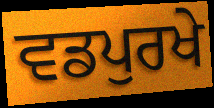
ਵਡਪੁਰਖੇ